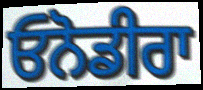
ਓਨੋਡੀਰਾ